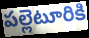
పల్లెటూరికి